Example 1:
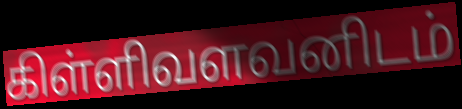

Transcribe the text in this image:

கிள்ளிவளவனிடம்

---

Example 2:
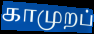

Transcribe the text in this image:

காமுறப்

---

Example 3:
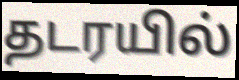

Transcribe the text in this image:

தடரயில்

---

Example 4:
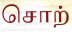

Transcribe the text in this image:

சொற்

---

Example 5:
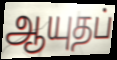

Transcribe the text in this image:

ஆயுதப்